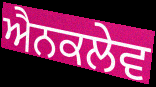
ਐਨਕਲੇਵ